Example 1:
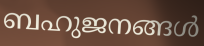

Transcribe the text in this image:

ബഹുജനങ്ങൾ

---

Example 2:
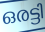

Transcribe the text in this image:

ഒരട്ടി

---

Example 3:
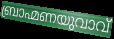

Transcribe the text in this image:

ബ്രാഹ്മണയുവാവ്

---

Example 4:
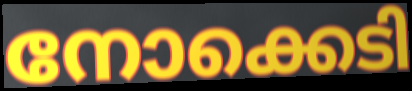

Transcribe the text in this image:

നോക്കെടി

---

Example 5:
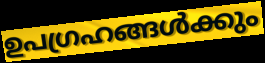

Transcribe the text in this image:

ഉപഗ്രഹങ്ങൾക്കും